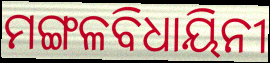
ମଙ୍ଗଳବିଧାୟିନୀ